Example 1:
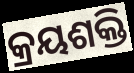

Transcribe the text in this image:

କ୍ରୟଶକ୍ତି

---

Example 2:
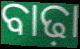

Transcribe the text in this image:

ବାଢ଼ା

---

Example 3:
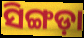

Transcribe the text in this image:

ସିଙ୍ଗଡ଼ା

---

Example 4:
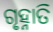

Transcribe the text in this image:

ଗୃହ୍ନାତି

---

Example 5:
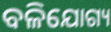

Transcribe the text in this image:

ବଳିଯୋଗ୍ୟ